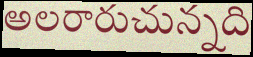
అలరారుచున్నది